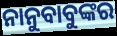
ନାନୁବାବୁଙ୍କର